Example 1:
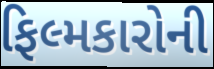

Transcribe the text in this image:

ફિલ્મકારોની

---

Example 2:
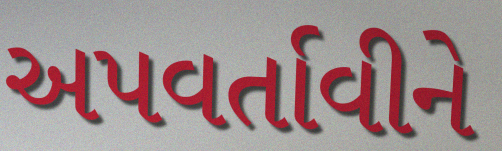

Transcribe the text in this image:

અપવર્તાવીને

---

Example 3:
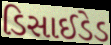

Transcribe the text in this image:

ડિસાઈડેડ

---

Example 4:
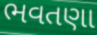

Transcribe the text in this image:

ભવતણા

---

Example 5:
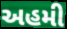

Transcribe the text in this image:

અહમી